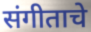
संगीताचे